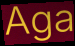
Aga